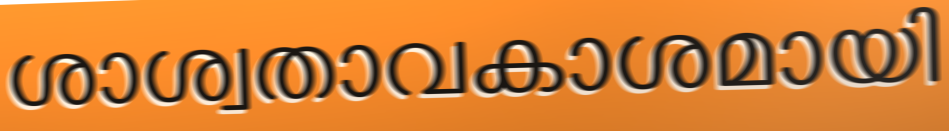
ശാശ്വതാവകാശമായി